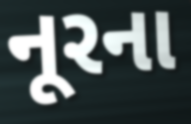
નૂરના